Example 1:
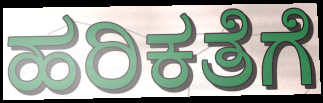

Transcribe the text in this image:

ಹರಿಕತೆಗೆ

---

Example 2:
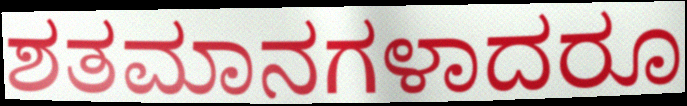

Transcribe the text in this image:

ಶತಮಾನಗಳಾದರೂ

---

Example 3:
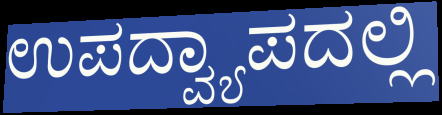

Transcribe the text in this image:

ಉಪದ್ವ್ಯಾಪದಲ್ಲಿ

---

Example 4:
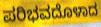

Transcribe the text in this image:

ಪರಿಭವದೊಳಾದ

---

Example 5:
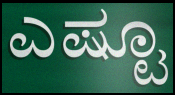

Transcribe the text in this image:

ಎಷ್ಟೂ